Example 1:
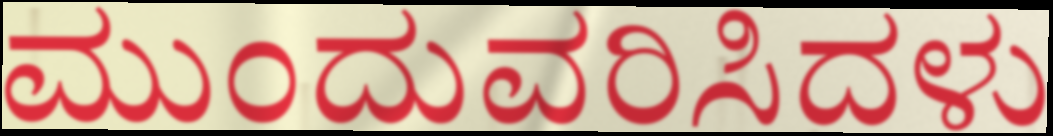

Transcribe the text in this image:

ಮುಂದುವರಿಸಿದಳು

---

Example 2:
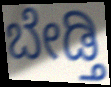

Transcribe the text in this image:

ಬೇಡ್ತಿ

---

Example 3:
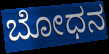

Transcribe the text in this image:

ಬೋಧನ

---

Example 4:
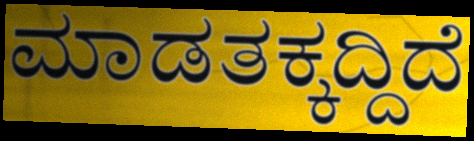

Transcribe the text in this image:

ಮಾಡತಕ್ಕದ್ದಿದೆ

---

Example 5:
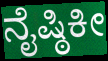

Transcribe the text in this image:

ನೈಷ್ಠಿಕೀ